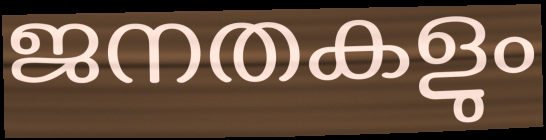
ജനതകളും